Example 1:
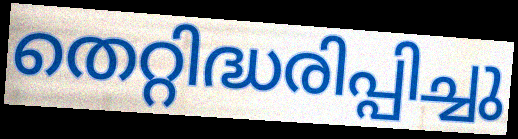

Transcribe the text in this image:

തെറ്റിദ്ധരിപ്പിച്ചു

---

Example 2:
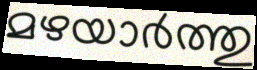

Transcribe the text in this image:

മഴയാർത്തു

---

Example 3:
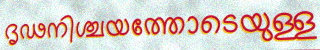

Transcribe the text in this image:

ദൃഢനിശ്ചയത്തോടെയുള്ള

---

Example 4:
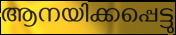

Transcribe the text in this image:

ആനയിക്കപ്പെട്ടു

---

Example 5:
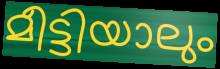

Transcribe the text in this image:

മീട്ടിയാലും